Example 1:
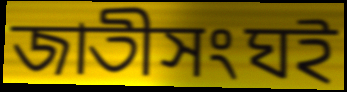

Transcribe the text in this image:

জাতীসংঘই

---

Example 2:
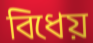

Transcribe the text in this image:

বিধেয়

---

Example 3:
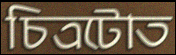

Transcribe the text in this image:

চিত্ৰটোত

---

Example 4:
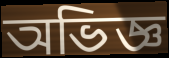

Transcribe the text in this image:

অভিজ্ঞ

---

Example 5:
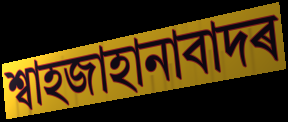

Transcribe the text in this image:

শ্বাহজাহানাবাদৰ